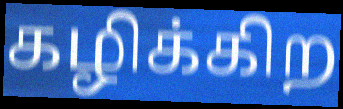
கழிக்கிற